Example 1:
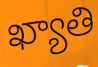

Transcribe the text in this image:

ఖ్యాతి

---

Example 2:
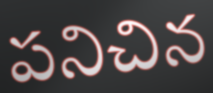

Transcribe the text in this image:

పనిచిన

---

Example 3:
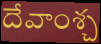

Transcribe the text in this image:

దేవాంశ్చ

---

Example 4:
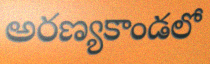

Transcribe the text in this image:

అరణ్యకాండలో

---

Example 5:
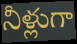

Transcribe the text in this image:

నీళ్లుగా